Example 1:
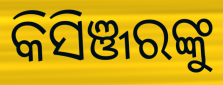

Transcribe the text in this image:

କିସିଞ୍ଜରଙ୍କୁ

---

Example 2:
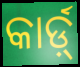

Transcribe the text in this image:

କାର୍ଡ଼୍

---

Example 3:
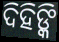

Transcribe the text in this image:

ଦିହିଙ୍କି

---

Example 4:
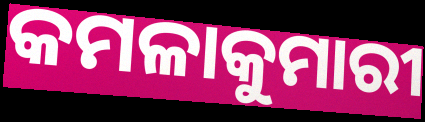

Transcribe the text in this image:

କମଳାକୁମାରୀ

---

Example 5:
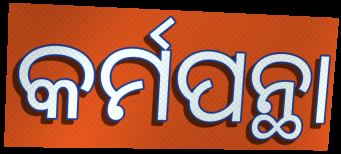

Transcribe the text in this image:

କର୍ମପନ୍ଥା